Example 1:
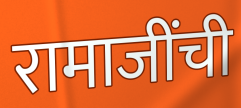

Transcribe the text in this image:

रामाजींची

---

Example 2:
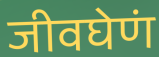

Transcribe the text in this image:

जीवघेणं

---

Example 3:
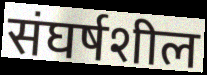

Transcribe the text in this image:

संघर्षशील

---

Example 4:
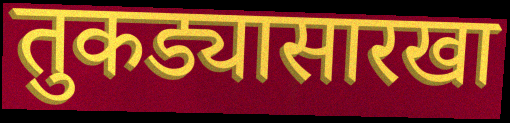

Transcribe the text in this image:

तुकड्यासारखा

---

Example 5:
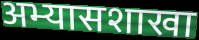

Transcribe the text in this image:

अभ्यासशाखा